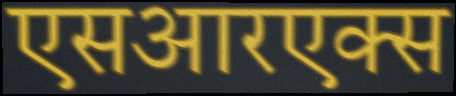
एसआरएक्स